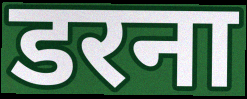
डरना